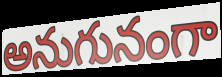
అనుగునంగా